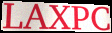
LAXPC